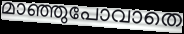
മാഞ്ഞുപോവാതെ